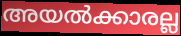
അയൽക്കാരല്ല